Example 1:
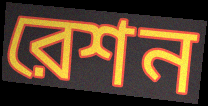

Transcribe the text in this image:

রেশন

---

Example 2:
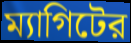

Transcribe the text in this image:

ম্যাগিটের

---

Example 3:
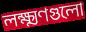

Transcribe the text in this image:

লক্ষ্মণগুলো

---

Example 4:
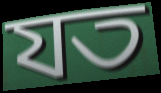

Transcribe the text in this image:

যত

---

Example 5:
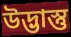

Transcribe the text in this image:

উদ্ভাস্তু